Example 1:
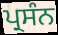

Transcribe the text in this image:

ਪ੍ਰਸੰਨ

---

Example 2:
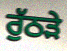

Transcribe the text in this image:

ਰੁੱਠੜੇ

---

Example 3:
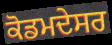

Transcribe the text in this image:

ਕੋਡਮਦੇਸਰ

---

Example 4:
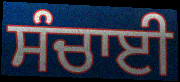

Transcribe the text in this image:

ਸੰਚਾਈ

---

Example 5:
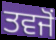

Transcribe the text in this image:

ਤਵਜੋਂ